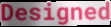
Designed